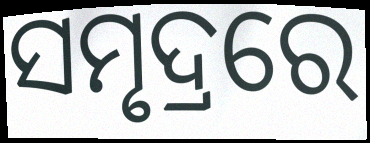
ସମୃଦ୍ରରେ